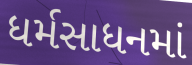
ધર્મસાધનમાં